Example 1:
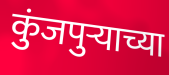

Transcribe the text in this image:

कुंजपुऱ्याच्या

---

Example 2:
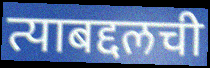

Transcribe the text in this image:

त्याबद्दलची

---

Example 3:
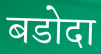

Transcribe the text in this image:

बडोदा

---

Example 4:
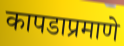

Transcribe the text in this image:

कापडाप्रमाणे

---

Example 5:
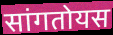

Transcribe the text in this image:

सांगतोयस